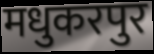
मधुकरपुर